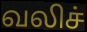
வலிச்